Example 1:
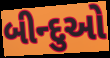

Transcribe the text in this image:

બીન્દુઓ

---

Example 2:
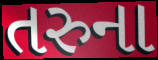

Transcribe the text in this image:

તરુના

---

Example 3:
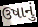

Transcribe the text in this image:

ઉષાનું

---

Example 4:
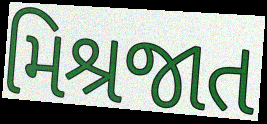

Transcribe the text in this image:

મિશ્રજાત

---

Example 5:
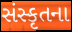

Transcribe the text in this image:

સંસ્‍કૃતના